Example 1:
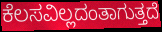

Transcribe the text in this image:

ಕೆಲಸವಿಲ್ಲದಂತಾಗುತ್ತದೆ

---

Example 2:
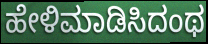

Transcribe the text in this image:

ಹೇಳಿಮಾಡಿಸಿದಂಥ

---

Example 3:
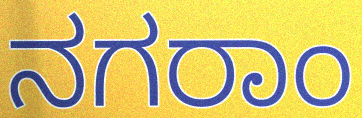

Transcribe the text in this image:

ನಗರಾಂ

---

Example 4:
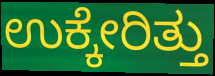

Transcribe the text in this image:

ಉಕ್ಕೇರಿತ್ತು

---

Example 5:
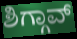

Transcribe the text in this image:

ಶಿಗ್ಗಾವ್